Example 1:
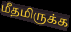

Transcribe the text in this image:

மீதமிருக்க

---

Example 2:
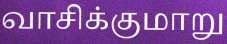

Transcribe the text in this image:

வாசிக்குமாறு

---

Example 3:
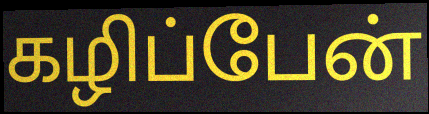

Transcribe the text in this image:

கழிப்பேன்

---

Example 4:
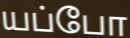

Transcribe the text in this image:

யப்போ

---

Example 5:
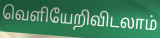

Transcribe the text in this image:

வெளியேறிவிடலாம்